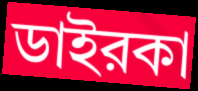
ডাইরকা